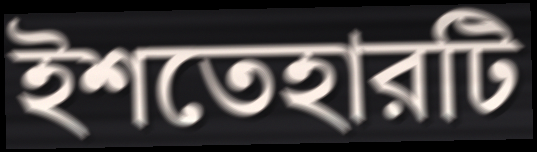
ইশতেহারটি